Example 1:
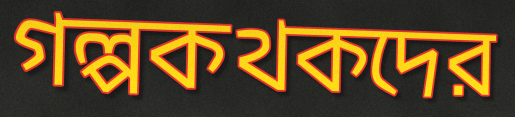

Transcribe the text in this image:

গল্পকথকদের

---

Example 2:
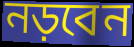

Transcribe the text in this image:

নড়বেন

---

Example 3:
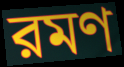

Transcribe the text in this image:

রমণ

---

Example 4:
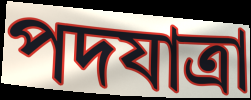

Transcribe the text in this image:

পদযাত্রা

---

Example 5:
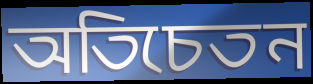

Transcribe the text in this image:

অতিচেতন